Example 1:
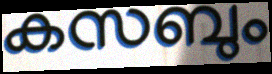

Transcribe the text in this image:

കസബും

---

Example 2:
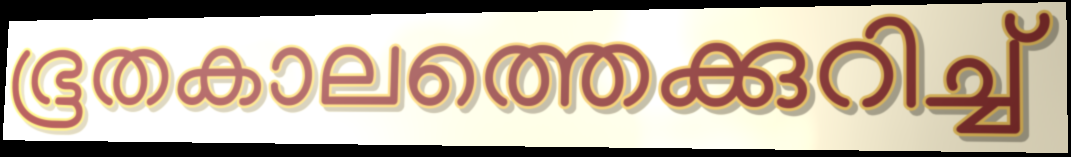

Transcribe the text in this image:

ഭൂതകാലത്തെക്കുറിച്ച്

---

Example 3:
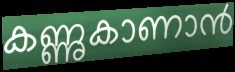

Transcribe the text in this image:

കണ്ണുകാണാൻ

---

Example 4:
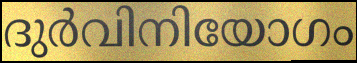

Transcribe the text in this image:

ദുർവിനിയോഗം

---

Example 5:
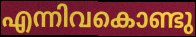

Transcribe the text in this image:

എന്നിവകൊണ്ടു